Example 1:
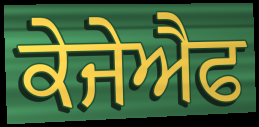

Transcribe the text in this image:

ਕੇਜੇਐਫ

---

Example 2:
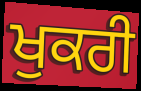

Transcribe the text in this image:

ਖੁਕਰੀ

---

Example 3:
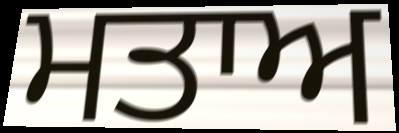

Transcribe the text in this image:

ਮਤਾਅ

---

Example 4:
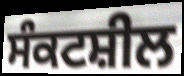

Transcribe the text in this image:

ਸੰਕਟਸ਼ੀਲ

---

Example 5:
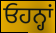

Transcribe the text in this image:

ਓਹਨ੍ਹਾਂ